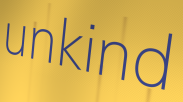
unkind